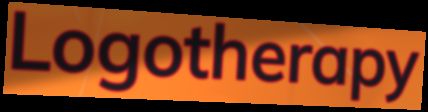
Logotherapy